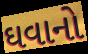
ઘવાનો